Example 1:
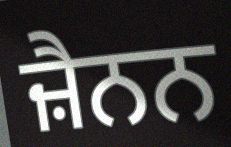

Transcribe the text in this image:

ਜ਼ੈਨਨ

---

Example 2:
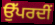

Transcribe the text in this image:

ਉੱਪਰਦੀਂ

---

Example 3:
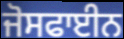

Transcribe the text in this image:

ਜੋਸਫਾਈਨ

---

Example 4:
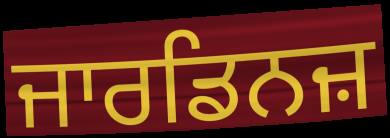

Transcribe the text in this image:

ਜਾਰਡਿਨਜ਼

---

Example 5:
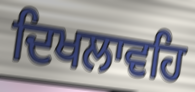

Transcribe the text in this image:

ਦਿਖਲਾਵਹਿ